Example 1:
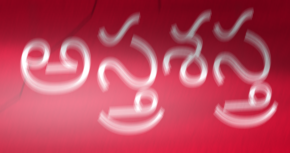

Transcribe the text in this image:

అస్త్రశస్త్ర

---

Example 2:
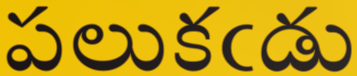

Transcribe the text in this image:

పలుకఁడు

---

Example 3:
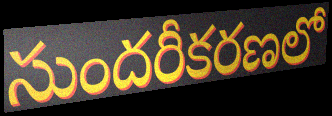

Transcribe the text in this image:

సుందరీకరణలో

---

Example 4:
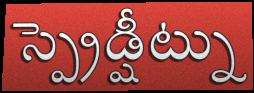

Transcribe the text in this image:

స్ప్రెడ్షీట్ను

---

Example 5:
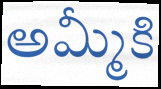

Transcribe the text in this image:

అమ్మీకి